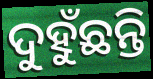
ଦୁହୁଁଛନ୍ତି